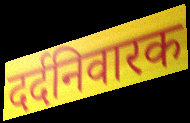
दर्दनिवारक